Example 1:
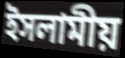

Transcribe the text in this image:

ইসলামীয়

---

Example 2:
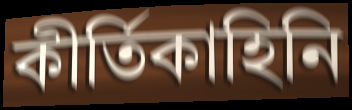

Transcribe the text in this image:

কীর্তিকাহিনি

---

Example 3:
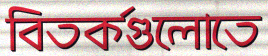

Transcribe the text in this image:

বিতর্কগুলোতে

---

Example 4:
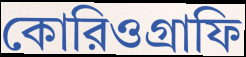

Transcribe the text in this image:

কোরিওগ্রাফি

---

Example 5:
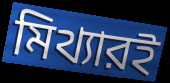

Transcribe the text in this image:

মিথ্যারই